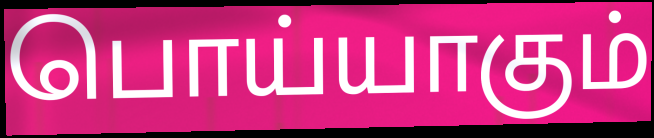
பொய்யாகும்